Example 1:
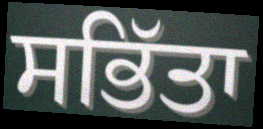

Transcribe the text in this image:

ਸਭਿੱਤਾ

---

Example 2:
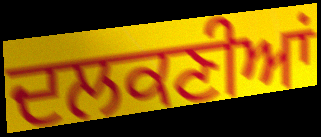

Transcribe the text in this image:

ਦਲਕਣੀਆਂ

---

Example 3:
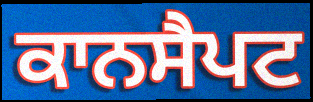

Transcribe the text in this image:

ਕਾਨਸੈਪਟ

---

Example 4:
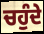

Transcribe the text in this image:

ਚਹੁੰਦੇ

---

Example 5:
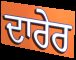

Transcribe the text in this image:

ਦਾਰੇਰ